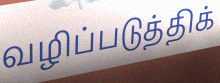
வழிப்படுத்திக்